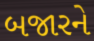
બજારને